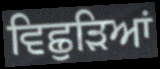
ਵਿਛੁੜਿਆਂ